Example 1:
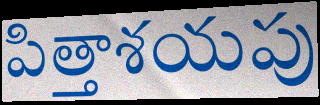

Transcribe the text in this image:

పిత్తాశయపు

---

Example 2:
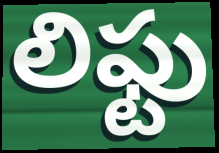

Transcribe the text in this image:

లిఫ్టు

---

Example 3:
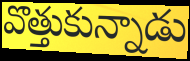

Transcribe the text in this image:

వొత్తుకున్నాడు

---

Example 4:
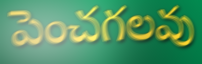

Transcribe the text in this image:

పెంచగలవు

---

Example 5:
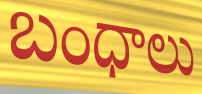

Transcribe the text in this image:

బంధాలు